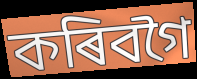
কৰিবগৈ